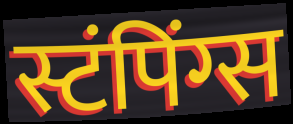
स्टंपिंग्स